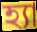
হ্যা